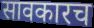
सावकारच